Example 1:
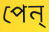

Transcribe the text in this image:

পেন্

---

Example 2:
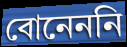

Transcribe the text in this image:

বোনেননি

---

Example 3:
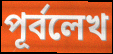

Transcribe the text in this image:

পূর্বলেখ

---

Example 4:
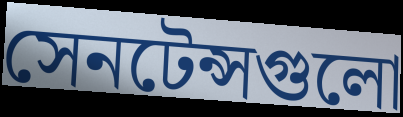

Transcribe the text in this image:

সেনটেন্সগুলো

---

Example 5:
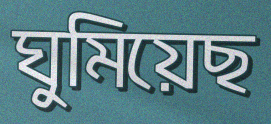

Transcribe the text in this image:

ঘুমিয়েছ